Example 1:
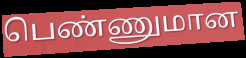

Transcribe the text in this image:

பெண்ணுமான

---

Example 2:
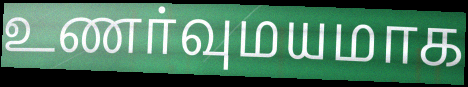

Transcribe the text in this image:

உணர்வுமயமாக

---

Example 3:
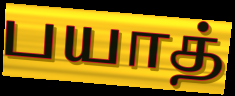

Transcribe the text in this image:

பயாத்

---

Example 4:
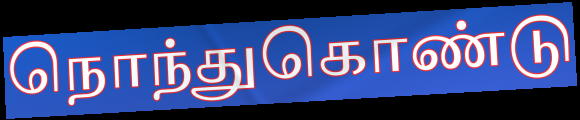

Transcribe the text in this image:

நொந்துகொண்டு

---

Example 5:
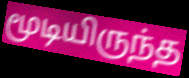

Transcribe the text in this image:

மூடியிருந்த